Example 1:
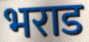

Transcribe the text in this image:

भराड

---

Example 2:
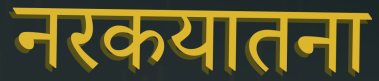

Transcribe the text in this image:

नरकयातना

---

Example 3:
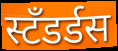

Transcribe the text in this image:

स्टँडर्डस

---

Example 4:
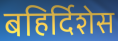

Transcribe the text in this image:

बहिर्दिशेस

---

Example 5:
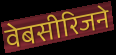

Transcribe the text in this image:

वेबसीरिजने